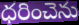
ధరించెను